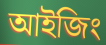
আইজিং